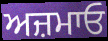
ਅਜ਼ਮਾਓ